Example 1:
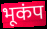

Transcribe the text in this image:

भूकंप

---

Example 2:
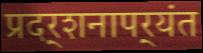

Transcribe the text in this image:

प्रदर्शनापर्यंत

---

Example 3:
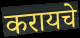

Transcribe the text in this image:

करायचे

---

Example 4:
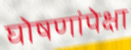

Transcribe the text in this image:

घोषणांपेक्षा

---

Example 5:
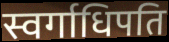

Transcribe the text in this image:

स्वर्गाधिपति